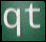
qt